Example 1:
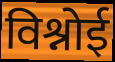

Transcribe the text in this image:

विश्नोई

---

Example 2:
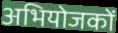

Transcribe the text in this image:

अभियोजकों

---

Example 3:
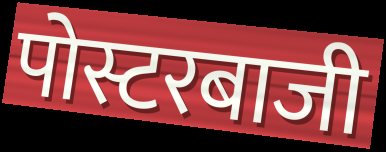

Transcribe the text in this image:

पोस्टरबाजी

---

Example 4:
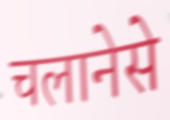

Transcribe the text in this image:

चलानेसे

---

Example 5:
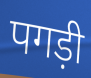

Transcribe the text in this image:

पगड़ी